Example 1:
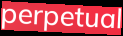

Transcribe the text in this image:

perpetual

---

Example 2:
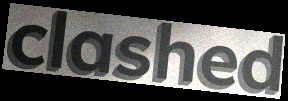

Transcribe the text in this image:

clashed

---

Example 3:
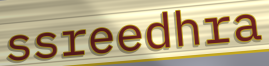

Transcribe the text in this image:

ssreedhra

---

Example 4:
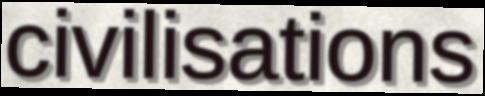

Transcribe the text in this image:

civilisations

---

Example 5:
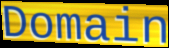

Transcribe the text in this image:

Domain